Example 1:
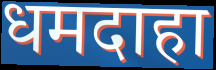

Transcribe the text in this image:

धमदाहा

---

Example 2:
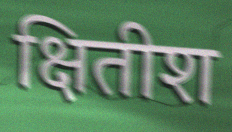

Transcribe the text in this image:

क्षितीश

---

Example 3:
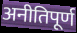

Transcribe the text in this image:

अनीतिपूर्ण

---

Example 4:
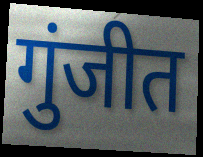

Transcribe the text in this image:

गुंजीत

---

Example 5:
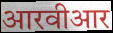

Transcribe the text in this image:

आरवीआर